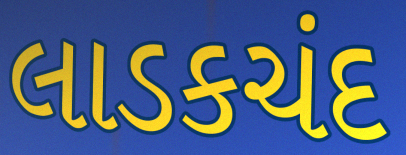
લાડકચંદ